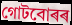
গোটবোৰৰ